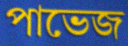
পাভেজ